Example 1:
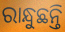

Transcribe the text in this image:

ରାନ୍ଧୁଛନ୍ତି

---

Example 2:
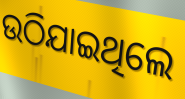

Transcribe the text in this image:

ଉଠିଯାଇଥିଲେ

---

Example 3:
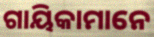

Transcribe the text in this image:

ଗାୟିକାମାନେ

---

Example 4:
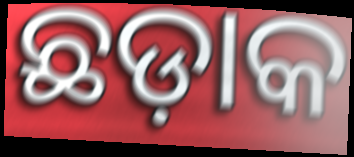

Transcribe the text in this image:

ଛଡ଼ାକ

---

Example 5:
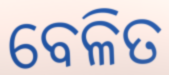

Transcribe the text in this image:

ବେଳିତ